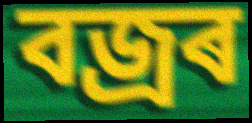
বজ্ৰৰ